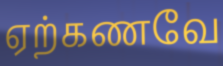
ஏற்கணவே